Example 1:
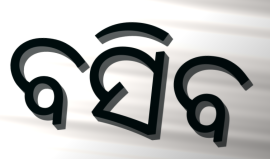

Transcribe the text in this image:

ବସିବ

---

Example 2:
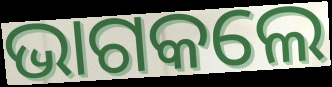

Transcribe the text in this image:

ଭାଗକଲେ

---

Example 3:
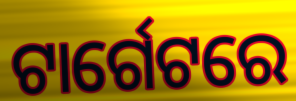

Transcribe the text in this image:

ଟାର୍ଗେଟରେ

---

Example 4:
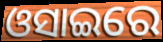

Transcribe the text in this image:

ଓସାଇରେ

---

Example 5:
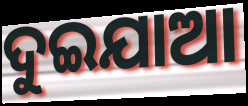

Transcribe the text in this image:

ଦୁଇଯାଆ